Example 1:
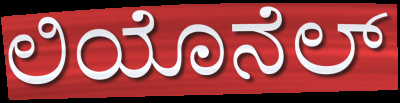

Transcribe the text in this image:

ಲಿಯೊನೆಲ್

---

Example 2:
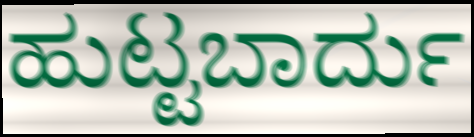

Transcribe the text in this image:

ಹುಟ್ಟಬಾರ್ದು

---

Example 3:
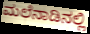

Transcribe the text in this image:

ಮಲೆನಾಡಿನಲ್ಲಿ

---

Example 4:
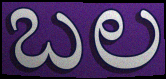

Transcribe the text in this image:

ಬಲ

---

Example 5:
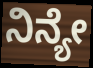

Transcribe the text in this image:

ನಿನ್ಯೇ